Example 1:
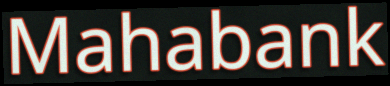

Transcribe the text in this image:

Mahabank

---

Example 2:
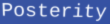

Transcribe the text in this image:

Posterity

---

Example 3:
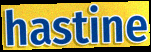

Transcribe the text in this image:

hastine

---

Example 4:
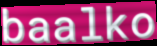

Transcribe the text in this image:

baalko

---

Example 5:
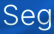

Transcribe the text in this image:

Seg